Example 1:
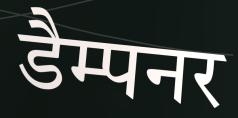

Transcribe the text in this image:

डैम्पनर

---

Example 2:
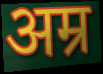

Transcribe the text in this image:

अम्र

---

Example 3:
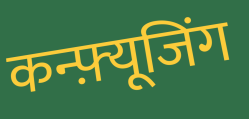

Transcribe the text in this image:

कन्फ़्यूजिंग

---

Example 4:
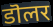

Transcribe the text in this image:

डॊलर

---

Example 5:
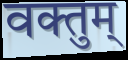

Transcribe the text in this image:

वक्तुम्